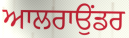
ਆਲਰਾਉਂਡਰ